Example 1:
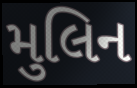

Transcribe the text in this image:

મુલિન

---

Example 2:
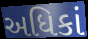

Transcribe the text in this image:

અધિકાં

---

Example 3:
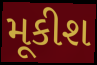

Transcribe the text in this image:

મૂકીશ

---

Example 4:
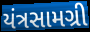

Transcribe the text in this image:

યંત્રસામગ્રી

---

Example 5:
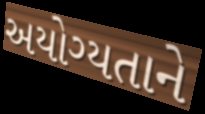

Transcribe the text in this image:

અયોગ્યતાને